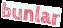
bunlar